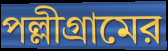
পল্লীগ্রামের